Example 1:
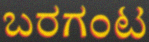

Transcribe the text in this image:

ಬರಗಂಟ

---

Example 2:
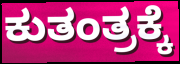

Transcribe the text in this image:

ಕುತಂತ್ರಕ್ಕೆ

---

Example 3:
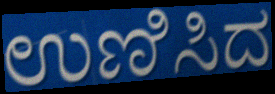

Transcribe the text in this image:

ಉಣಿಸಿದ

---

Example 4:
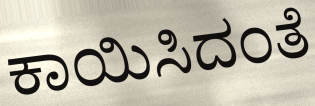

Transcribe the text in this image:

ಕಾಯಿಸಿದಂತೆ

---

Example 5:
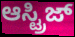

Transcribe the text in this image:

ಆಸ್ಟ್ರಿಜ್